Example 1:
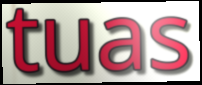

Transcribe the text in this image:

tuas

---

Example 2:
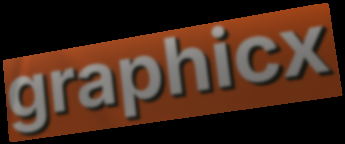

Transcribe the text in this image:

graphicx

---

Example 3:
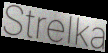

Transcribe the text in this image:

Strelka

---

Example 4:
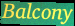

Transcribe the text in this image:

Balcony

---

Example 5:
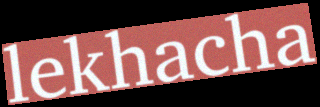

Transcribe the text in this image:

lekhacha